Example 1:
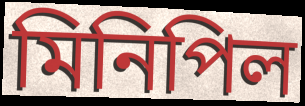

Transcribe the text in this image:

মিনিপিল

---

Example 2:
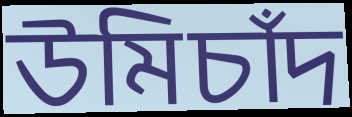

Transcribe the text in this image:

উমিচাঁদ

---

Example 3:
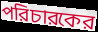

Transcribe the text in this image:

পরিচারকের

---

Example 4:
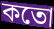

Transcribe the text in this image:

কতো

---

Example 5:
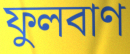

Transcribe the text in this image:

ফুলবাণ